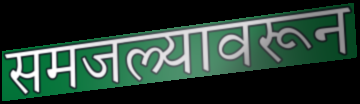
समजल्यावरून